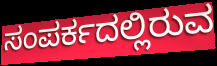
ಸಂಪರ್ಕದಲ್ಲಿರುವ